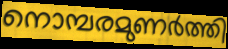
നൊമ്പരമുണർത്തി